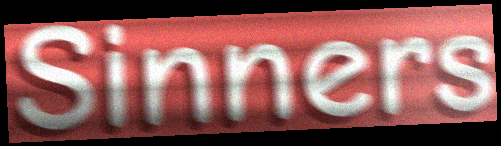
Sinners